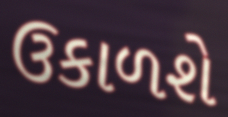
ઉકાળશે